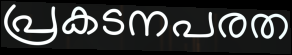
പ്രകടനപരത